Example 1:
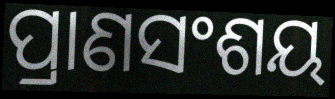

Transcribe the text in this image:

ପ୍ରାଣସଂଶୟ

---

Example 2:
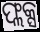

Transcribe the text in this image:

ଫ୍ଲକ୍ସ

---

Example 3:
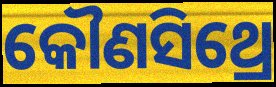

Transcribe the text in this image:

କୌଣସିଥ୍ରେ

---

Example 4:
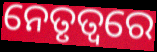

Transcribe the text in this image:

ନେତୃତ୍ଵରେ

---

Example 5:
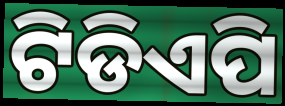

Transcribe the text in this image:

ଟିଡିଏପି